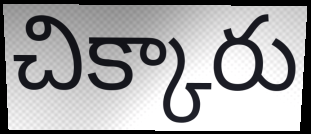
చిక్కారు